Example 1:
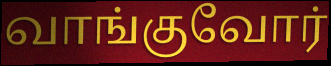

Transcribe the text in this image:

வாங்குவோர்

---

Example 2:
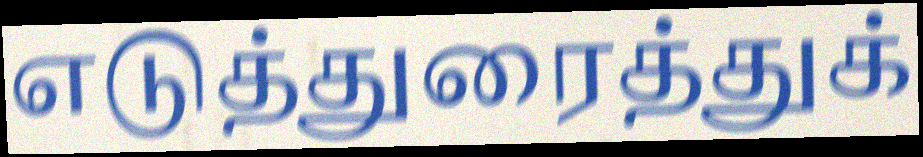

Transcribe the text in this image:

எடுத்துரைத்துக்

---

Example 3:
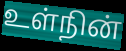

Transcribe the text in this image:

உள்நின்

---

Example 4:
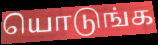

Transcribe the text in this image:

யொடுங்க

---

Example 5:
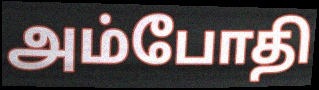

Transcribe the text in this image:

அம்போதி